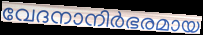
വേദനാനിർഭരമായ